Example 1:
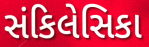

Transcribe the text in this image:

સંકિલેસિકા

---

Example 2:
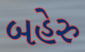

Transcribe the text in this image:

બહેરુ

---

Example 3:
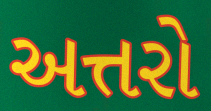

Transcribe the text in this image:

અત્તરો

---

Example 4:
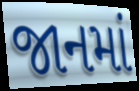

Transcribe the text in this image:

જાનમાં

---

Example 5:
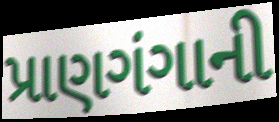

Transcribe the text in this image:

પ્રાણગંગાની